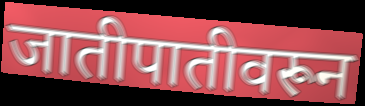
जातीपातीवरून